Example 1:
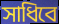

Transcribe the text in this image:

সাধিবে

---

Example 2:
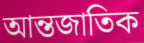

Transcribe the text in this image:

আন্তজাতিক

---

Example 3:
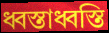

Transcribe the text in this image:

ধ্বস্তাধ্বস্তি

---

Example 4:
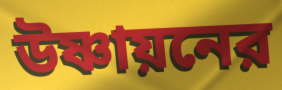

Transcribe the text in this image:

উষ্ণায়নের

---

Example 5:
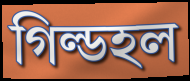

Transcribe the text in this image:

গিল্ডহল